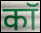
कॉ